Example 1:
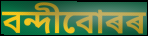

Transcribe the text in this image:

বন্দীবোৰৰ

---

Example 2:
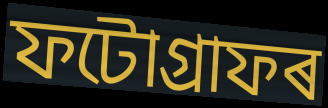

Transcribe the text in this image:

ফটোগ্ৰাফৰ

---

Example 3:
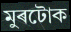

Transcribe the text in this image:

মুৰটোক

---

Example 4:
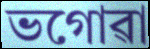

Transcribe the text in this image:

ভগোৱা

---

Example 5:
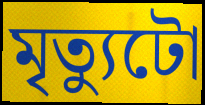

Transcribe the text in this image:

মৃত্যুটো